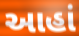
આહાં